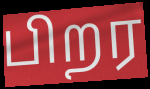
பிறர